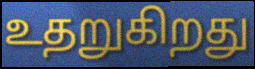
உதறுகிறது